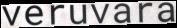
veruvara